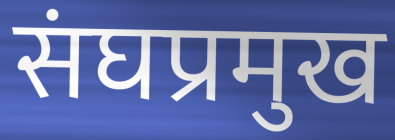
संघप्रमुख